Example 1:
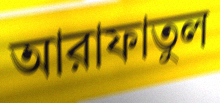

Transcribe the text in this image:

আরাফাতুল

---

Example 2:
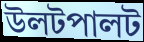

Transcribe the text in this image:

উলটপালট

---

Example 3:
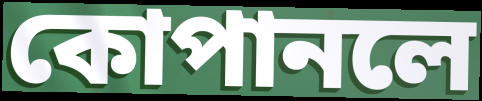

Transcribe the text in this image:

কোপানলে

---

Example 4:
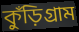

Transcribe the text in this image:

কুঁড়িগ্রাম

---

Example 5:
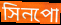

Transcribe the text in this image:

সিনপো